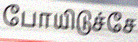
போயிடுச்சே